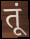
तूं